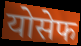
योसेफ